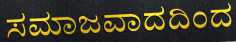
ಸಮಾಜವಾದದಿಂದ